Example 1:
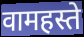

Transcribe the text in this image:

वामहस्ते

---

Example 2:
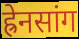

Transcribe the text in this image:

ह्रेनसांग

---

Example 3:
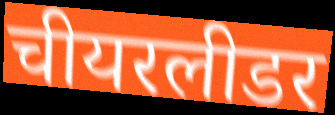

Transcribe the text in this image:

चीयरलीडर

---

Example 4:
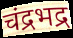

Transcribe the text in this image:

चंद्रभद्र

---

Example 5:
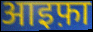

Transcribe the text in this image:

आइफ़ा